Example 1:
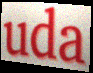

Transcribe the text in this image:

uda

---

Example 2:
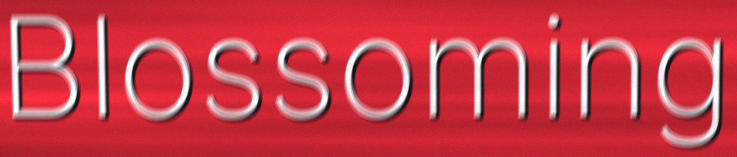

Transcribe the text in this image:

Blossoming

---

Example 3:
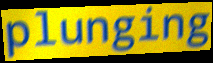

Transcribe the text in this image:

plunging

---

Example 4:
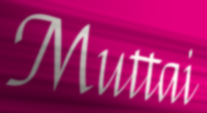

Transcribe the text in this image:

Muttai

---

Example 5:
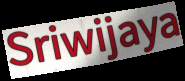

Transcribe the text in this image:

Sriwijaya